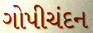
ગોપીચંદન